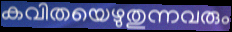
കവിതയെഴുതുന്നവരും